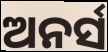
ଅନର୍ସ